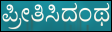
ಪ್ರೀತಿಸಿದಂಥ